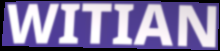
WITIAN